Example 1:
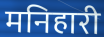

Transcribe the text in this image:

मनिहारी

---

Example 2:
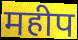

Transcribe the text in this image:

महीप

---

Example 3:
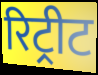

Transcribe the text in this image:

रिट्रीट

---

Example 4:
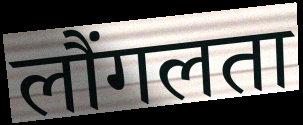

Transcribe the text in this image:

लौंगलता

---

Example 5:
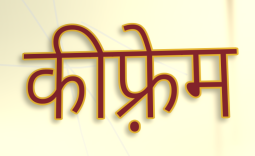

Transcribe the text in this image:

कीफ़्रेम